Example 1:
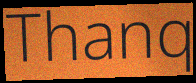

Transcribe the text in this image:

Thanq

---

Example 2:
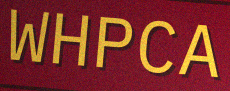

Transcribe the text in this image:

WHPCA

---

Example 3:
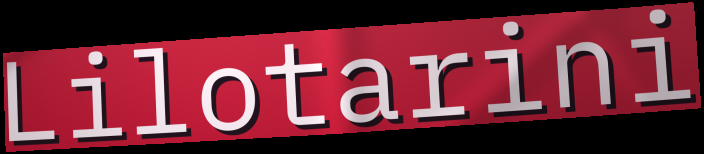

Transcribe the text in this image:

Lilotarini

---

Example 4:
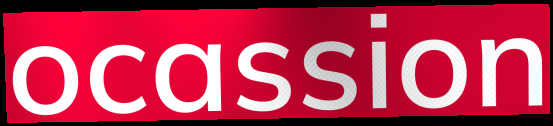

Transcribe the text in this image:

ocassion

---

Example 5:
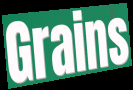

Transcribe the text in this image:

Grains